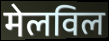
मेलविल